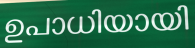
ഉപാധിയായി